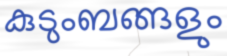
കുടുംബങ്ങളും